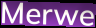
Merwe